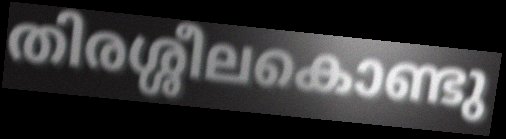
തിരശ്ശീലകൊണ്ടു